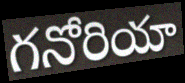
గనోరియా